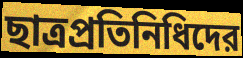
ছাত্রপ্রতিনিধিদের